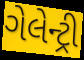
ગેલેન્ટ્રી